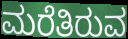
ಮರೆತಿರುವ